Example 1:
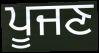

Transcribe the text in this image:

ਪੂਜਣ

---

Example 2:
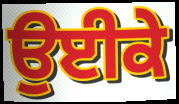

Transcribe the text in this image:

ਉਈਕੇ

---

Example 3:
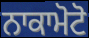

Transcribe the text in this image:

ਨਾਕਾਮੋਟੋ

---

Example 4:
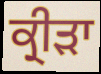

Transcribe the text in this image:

ਕ੍ਰੀੜਾ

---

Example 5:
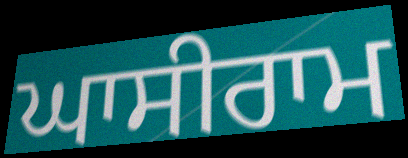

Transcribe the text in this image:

ਘਾਸੀਰਾਮ